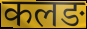
कलङ